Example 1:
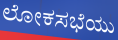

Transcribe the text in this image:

ಲೋಕಸಭೆಯು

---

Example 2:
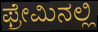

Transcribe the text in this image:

ಫ್ರೇಮಿನಲ್ಲಿ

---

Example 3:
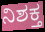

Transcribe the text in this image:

ನಿಶಕ್ತ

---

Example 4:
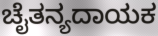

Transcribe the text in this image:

ಚೈತನ್ಯದಾಯಕ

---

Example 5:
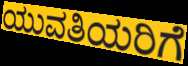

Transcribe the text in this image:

ಯುವತಿಯರಿಗೆ